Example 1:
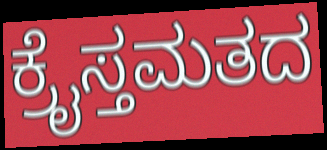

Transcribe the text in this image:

ಕ್ರೈಸ್ತಮತದ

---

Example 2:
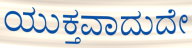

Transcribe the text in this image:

ಯುಕ್ತವಾದುದೇ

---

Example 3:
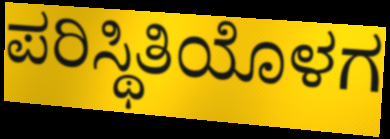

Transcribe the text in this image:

ಪರಿಸ್ಥಿತಿಯೊಳಗ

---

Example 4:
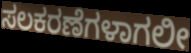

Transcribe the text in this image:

ಸಲಕರಣೆಗಳಾಗಲೀ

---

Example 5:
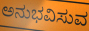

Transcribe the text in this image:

ಅನುಭವಿಸುವ